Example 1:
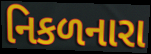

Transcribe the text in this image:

નિકળનારા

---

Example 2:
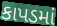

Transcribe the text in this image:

કાપડમાં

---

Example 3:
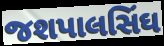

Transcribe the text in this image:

જશપાલસિંઘ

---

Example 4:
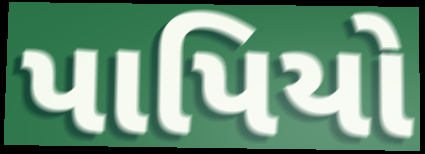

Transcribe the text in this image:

પાપિયો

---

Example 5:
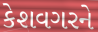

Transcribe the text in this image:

કેશવગરને